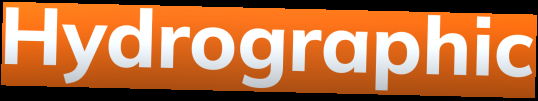
Hydrographic